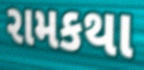
રામકથા